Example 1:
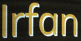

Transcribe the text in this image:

Irfan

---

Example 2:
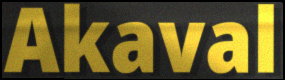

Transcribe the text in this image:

Akaval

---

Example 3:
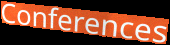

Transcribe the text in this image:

Conferences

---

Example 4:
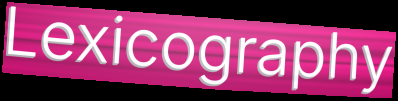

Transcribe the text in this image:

Lexicography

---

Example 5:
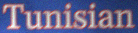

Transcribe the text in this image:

Tunisian